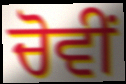
ਚੋਵੀਂ